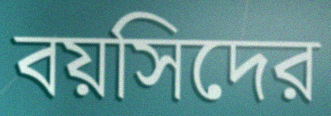
বয়সিদের